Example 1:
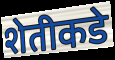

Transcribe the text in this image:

शेतीकडे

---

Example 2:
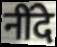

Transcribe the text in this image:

नींदे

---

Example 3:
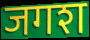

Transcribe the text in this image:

जगश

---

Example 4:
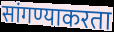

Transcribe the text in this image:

सांगण्याकरता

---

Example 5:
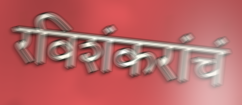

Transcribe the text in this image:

रविशंकरांचं